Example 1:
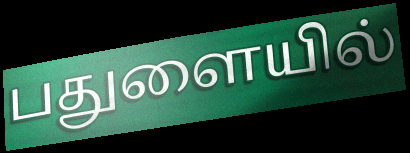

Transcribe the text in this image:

பதுளையில்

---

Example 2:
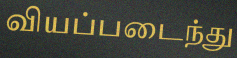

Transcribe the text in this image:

வியப்படைந்து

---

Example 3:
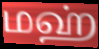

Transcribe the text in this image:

மஹ்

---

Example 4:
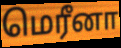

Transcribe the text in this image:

மெரீனா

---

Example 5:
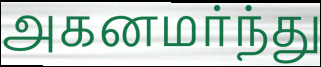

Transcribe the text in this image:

அகனமர்ந்து